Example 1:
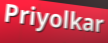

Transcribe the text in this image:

Priyolkar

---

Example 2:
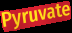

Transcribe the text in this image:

Pyruvate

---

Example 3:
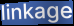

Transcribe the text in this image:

linkage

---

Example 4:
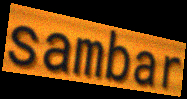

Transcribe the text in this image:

sambar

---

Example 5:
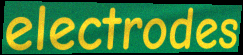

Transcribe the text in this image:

electrodes